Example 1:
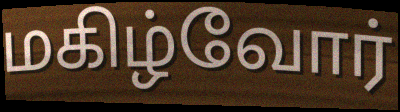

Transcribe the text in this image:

மகிழ்வோர்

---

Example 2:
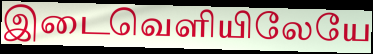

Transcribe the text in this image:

இடைவெளியிலேயே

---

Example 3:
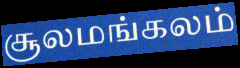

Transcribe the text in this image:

சூலமங்கலம்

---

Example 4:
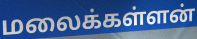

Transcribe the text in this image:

மலைக்கள்ளன்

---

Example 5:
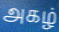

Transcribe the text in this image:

அகழ்